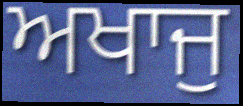
ਅਖਾਜੁ